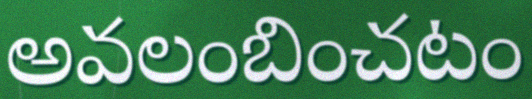
అవలంబించటం